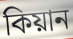
কিয়ান